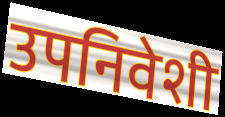
उपनिवेशी